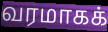
வரமாகக்